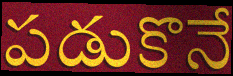
పడుకొనే